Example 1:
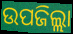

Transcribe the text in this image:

ଉପଜିଲ୍ଲା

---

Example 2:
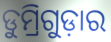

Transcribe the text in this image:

ଡୁମ୍ରିଗୁଡ଼ାର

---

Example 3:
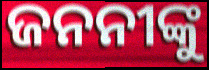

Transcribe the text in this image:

ଜନନୀଙ୍କୁ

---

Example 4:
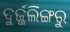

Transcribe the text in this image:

ଦୁର୍ଜ୍ଜଲିଙ୍ଗରୁ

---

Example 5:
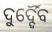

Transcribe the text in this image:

ଦୁର୍ଦ୍ଦୈବ